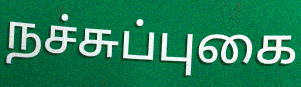
நச்சுப்புகை